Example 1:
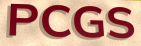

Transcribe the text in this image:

PCGS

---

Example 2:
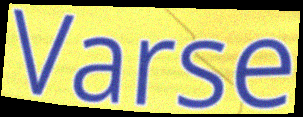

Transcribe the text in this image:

Varse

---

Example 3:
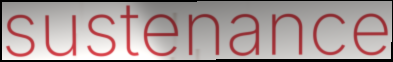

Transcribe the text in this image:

sustenance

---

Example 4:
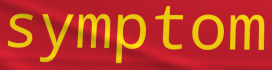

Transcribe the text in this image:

symptom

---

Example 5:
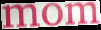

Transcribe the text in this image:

mom